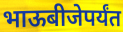
भाऊबीजेपर्यंत